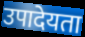
उपादेयता